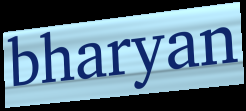
bharyan